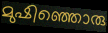
മുഷിഞ്ഞൊരു